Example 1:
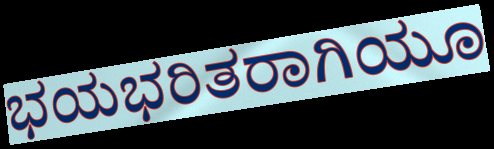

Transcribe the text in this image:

ಭಯಭರಿತರಾಗಿಯೂ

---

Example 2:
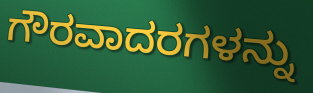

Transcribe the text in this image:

ಗೌರವಾದರಗಳನ್ನು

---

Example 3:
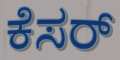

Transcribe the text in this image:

ಕೆಸರ್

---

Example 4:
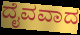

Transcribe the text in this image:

ದೈವವಾದ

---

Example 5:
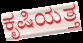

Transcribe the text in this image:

ಕೃಷಿಯತ್ತ